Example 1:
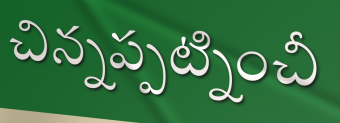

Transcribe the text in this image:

చిన్నప్పట్నించీ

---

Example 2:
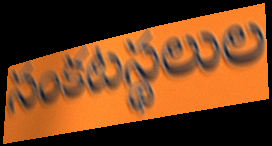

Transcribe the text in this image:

సంకటస్థలుల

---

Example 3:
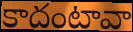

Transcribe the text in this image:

కాదంటావా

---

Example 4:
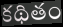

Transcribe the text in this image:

కథితం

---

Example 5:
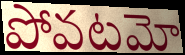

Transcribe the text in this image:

పోవటమో